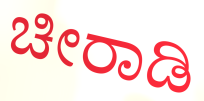
ಚೀರಾಡಿ